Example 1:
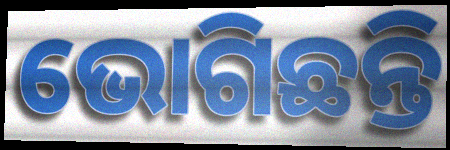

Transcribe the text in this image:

ଭୋଗିଛନ୍ତି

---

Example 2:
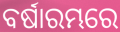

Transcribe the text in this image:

ବର୍ଷାରମ୍ଭରେ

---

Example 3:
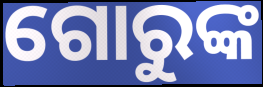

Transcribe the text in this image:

ଗୋରୁଙ୍କ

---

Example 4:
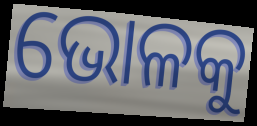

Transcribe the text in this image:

ଭୋଳକୁ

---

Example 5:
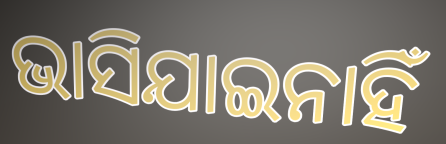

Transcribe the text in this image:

ଭାସିଯାଇନାହିଁ